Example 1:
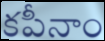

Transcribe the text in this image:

కపీనాం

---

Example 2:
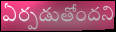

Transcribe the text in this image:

ఏర్పడుతోందని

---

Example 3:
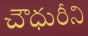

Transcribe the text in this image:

చౌధురీని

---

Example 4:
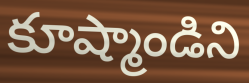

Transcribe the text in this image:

కూష్మాండిని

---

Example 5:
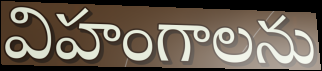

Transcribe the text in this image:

విహంగాలను